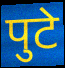
पुटे